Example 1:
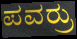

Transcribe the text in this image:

ಪವರ್ರು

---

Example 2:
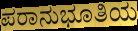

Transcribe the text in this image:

ಪರಾನುಭೂತಿಯ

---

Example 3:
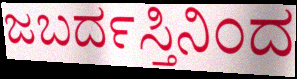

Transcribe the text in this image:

ಜಬರ್ದಸ್ತಿನಿಂದ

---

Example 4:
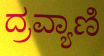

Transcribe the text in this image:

ದ್ರವ್ಯಾಣಿ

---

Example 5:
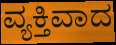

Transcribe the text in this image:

ವ್ಯಕ್ತಿವಾದ